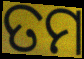
ତମ